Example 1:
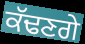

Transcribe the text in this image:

ਕੱਢਣਗੇ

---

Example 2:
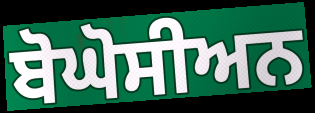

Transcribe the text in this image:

ਬੋਘੋਸੀਅਨ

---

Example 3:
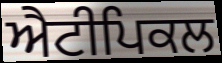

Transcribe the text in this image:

ਐਟੀਪਿਕਲ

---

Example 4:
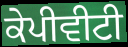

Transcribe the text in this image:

ਕੇਪੀਵੀਟੀ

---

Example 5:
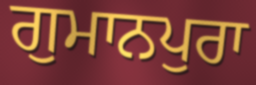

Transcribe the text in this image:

ਗੁਮਾਨਪੁਰਾ